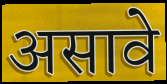
असावे